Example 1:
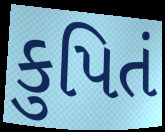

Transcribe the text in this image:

કુપિતં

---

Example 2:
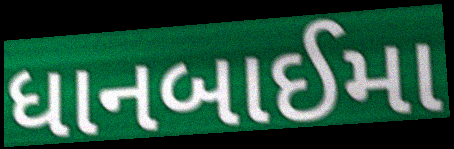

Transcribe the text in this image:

ધાનબાઈમા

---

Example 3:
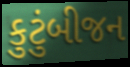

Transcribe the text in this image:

કુટુંબીજન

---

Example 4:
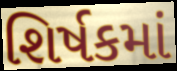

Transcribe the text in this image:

શિર્ષકમાં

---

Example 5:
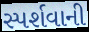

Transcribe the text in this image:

સ્પર્શવાની